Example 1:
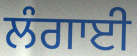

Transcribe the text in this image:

ਲੰਗਾਈ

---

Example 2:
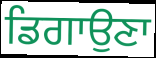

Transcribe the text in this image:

ਡਿਗਾਉਣਾ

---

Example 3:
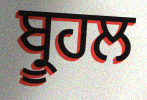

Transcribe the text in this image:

ਬ੍ਰੂਹਲ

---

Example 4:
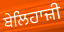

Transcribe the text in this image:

ਬੇਲਿਹਾਜ਼ੀ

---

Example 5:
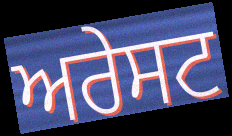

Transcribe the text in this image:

ਅਰੇਸਟ